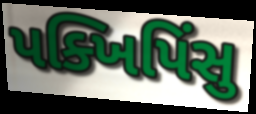
પક્ખિપિંસુ